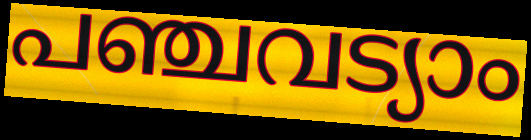
പഞ്ചവട്യാം